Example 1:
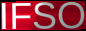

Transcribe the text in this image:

IFSO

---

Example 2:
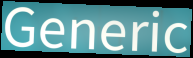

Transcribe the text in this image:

Generic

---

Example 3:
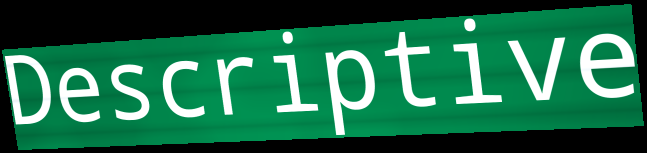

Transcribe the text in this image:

Descriptive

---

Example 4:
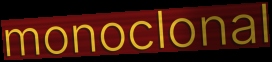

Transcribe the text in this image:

monoclonal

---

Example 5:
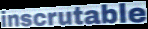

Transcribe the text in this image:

inscrutable